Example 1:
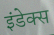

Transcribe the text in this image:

इंडेक्स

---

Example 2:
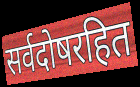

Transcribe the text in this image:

सर्वदोषरहित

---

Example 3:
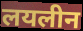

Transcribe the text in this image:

लयलीन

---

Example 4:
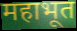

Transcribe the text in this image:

महाभूत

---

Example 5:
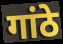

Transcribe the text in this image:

गांठे